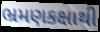
ભ્રમણકક્ષાથી